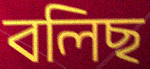
বলিছ